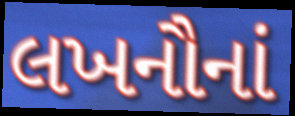
લખનૌનાં